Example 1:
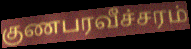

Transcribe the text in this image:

குணபரவீச்சரம்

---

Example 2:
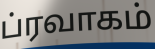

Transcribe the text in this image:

ப்ரவாகம்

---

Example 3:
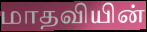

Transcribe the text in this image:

மாதவியின்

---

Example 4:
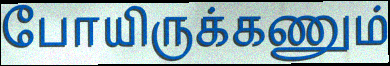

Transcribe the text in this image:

போயிருக்கணும்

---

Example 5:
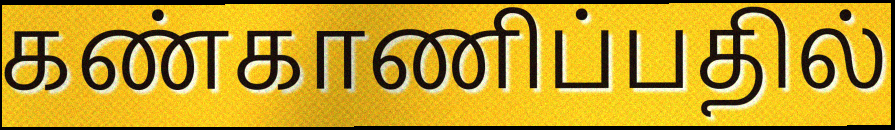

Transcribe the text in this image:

கண்காணிப்பதில்